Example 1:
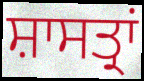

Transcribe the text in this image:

ਸ਼ਾਸਤ੍ਰਾਂ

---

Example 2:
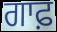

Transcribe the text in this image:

ਗਾਫ਼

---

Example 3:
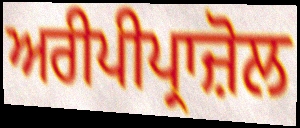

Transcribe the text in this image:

ਅਰੀਪੀਪ੍ਰਾਜ਼ੋਲ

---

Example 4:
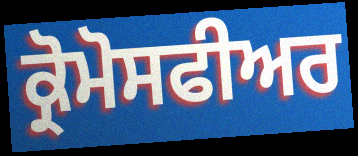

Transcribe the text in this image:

ਕ੍ਰੋਮੋਸਫੀਅਰ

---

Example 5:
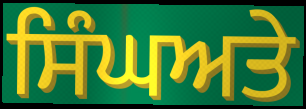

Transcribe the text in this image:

ਸਿੰਘਅਤੇ